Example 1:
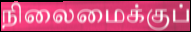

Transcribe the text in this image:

நிலைமைக்குப்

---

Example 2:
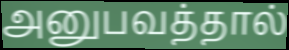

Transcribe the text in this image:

அனுபவத்தால்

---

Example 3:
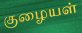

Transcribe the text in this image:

குழையள்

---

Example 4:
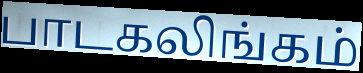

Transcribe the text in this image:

பாடகலிங்கம்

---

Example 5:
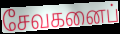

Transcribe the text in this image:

சேவகனைப்